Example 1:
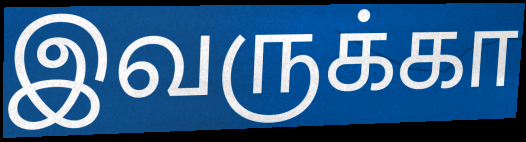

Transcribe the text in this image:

இவருக்கா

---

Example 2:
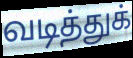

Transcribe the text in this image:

வடித்துக்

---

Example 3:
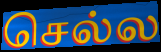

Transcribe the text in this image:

செல்ல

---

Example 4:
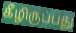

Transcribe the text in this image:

கீழிருப்பது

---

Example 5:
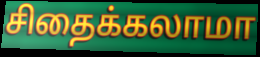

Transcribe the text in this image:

சிதைக்கலாமா